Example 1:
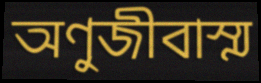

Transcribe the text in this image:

অণুজীবাস্ম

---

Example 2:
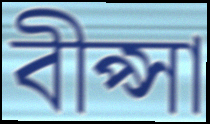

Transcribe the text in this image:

বীপ্সা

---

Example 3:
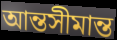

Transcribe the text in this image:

আন্তসীমান্ত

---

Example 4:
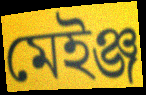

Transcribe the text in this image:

মেইঞ্জ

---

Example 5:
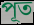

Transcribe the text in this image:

পূত